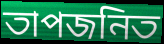
তাপজনিত